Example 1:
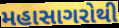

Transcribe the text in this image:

મહાસાગરોથી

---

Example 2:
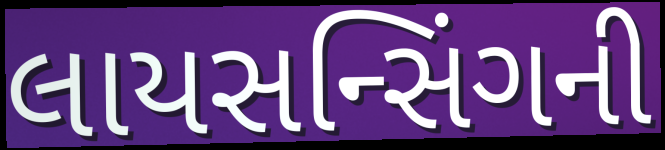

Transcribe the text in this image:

લાયસન્સિંગની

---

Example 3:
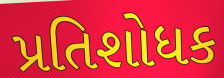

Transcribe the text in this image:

પ્રતિશોધક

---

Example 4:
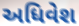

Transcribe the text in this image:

અધિવેશ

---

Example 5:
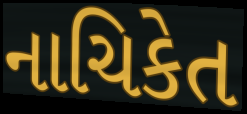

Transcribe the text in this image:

નાચિકેત